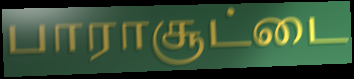
பாராசூட்டை